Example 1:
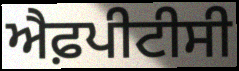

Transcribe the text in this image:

ਐਫ਼ਪੀਟੀਸੀ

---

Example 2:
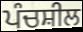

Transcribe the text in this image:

ਪੰਚਸ਼ੀਲ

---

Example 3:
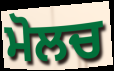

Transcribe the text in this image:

ਮੋਲਚ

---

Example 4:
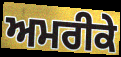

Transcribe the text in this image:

ਅਮਰੀਕੇ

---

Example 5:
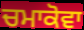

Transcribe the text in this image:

ਚਮਾਕੋਵਾ